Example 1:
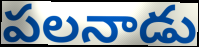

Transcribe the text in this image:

పలనాడు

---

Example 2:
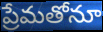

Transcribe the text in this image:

ప్రేమతోనూ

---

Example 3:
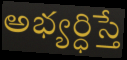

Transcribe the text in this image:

అభ్యర్ధిస్తే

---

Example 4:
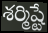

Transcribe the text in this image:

శర్మిష్టే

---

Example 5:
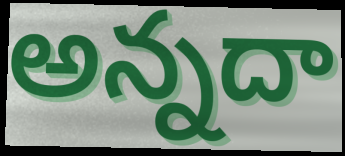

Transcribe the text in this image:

అన్నదా